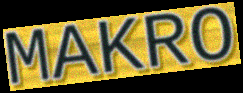
MAKRO